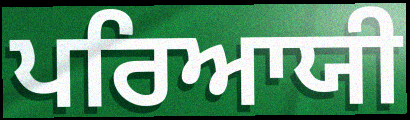
ਪਰਿਆਯੀ